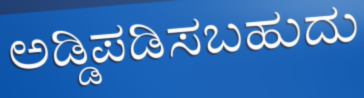
ಅಡ್ಡಿಪಡಿಸಬಹುದು